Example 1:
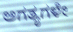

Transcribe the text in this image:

ಅಗತ್ಯಗಳೇ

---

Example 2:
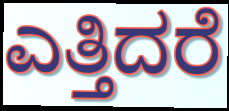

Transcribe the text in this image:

ಎತ್ತಿದರೆ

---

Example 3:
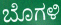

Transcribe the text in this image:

ಬೊಗಳಿ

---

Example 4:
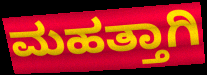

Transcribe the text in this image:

ಮಹತ್ತಾಗಿ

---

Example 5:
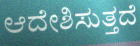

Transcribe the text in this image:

ಆದೇಶಿಸುತ್ತದೆ